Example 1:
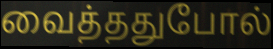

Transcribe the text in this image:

வைத்ததுபோல்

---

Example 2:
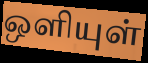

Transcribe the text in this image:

ஒளியுள்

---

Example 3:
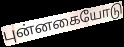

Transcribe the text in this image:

புன்னகையோடு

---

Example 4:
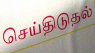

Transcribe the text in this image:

செய்திடுதல்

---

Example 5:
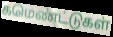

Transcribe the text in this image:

கமெண்ட்டுகள்